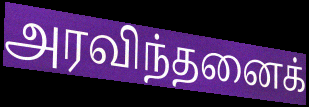
அரவிந்தனைக்